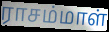
ராசம்மாள்